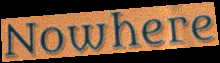
Nowhere